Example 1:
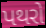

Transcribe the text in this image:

પથરો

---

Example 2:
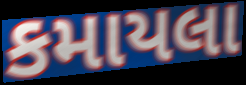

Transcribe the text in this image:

કમાયલા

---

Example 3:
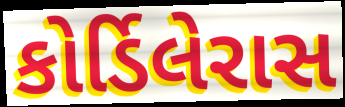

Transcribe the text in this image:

કોર્ડિલેરાસ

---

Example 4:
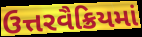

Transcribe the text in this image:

ઉત્તરવૈક્રિયમાં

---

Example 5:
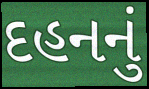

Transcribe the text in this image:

દહનનું